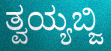
ತ್ವಯ್ಯಬ್ಜಿ